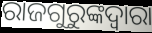
ରାଜଗୁରୁଙ୍କଦ୍ୱାରା